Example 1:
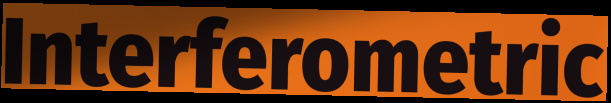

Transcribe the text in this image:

Interferometric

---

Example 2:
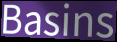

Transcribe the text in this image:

Basins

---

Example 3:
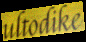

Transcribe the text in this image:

ultodike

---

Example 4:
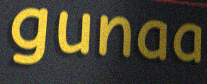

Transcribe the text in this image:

gunaa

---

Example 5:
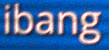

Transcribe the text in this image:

ibang